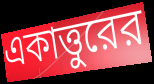
একাত্তুরের